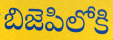
బిజెపిలోకి